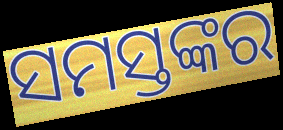
ସମସ୍ତଙ୍କର